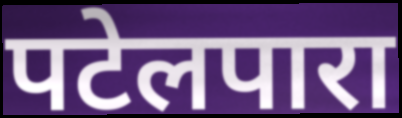
पटेलपारा